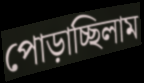
পোড়াচ্ছিলাম